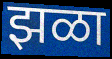
झळा